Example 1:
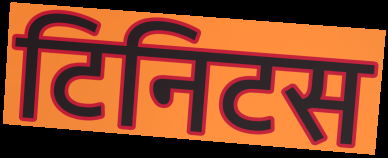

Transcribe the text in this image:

टिनिटस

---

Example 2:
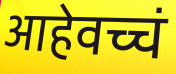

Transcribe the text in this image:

आहेवच्चं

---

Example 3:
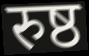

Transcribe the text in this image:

रुष्ठ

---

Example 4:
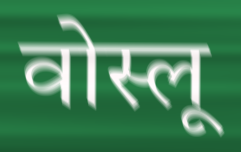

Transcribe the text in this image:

वोस्लू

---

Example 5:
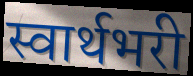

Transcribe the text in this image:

स्वार्थभरी